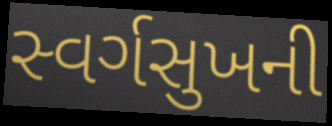
સ્વર્ગસુખની